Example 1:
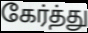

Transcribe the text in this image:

கேர்த்து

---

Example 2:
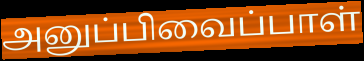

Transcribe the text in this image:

அனுப்பிவைப்பாள்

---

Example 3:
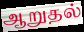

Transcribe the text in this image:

ஆறுதல்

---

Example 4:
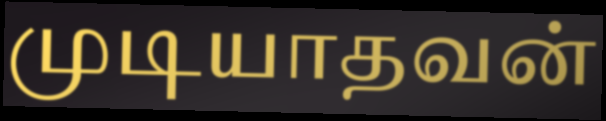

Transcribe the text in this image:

முடியாதவன்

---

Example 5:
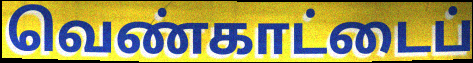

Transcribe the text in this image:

வெண்காட்டைப்